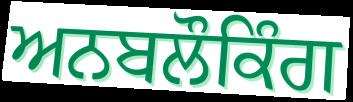
ਅਨਬਲੌਕਿੰਗ